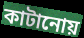
কাটানোয়